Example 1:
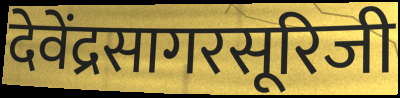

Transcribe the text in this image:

देवेंद्रसागरसूरिजी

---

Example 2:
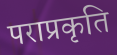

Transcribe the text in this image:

पराप्रकृति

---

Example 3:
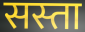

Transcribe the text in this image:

सस्‍ता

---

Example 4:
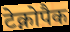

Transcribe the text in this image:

टेक्नोपैक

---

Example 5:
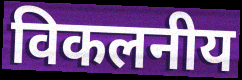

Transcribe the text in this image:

विकलनीय